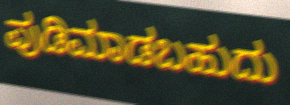
ಪುಡಿಮಾಡಬಹುದು